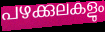
പഴക്കുലകളും